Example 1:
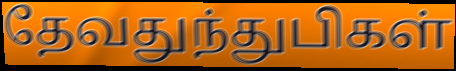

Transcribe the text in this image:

தேவதுந்துபிகள்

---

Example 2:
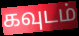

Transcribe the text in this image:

கவுடம்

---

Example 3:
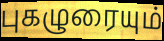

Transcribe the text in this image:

புகழுரையும்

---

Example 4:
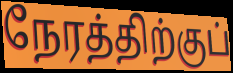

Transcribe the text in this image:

நேரத்திற்குப்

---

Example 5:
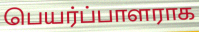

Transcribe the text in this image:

பெயர்ப்பாளராக